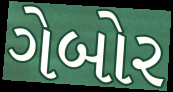
ગેબોર